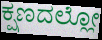
ಕ್ಷಣದಲ್ಲೋ